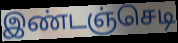
இண்டஞ்செடி